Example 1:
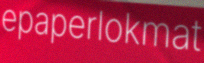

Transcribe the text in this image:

epaperlokmat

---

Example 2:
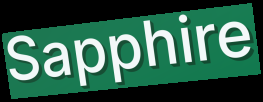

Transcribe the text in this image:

Sapphire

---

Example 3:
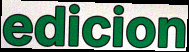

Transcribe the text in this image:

edicion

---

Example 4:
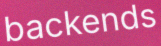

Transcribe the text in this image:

backends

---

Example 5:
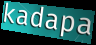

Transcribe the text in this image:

kadapa